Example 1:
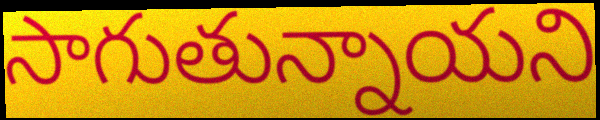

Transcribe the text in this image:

సాగుతున్నాయని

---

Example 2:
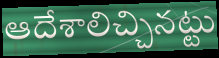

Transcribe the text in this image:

ఆదేశాలిచ్చినట్టు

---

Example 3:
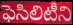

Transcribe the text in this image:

ఫెసిలిటీని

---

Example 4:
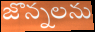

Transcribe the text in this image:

జొన్నలను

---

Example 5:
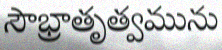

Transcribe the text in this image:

సౌభ్రాతృత్వమును